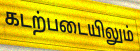
கடற்படையிலும்